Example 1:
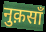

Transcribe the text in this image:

नुक़साँ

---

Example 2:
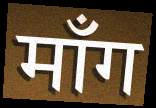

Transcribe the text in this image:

माँग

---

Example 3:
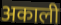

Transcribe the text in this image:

अकाली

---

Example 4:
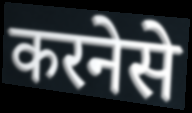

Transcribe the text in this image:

करनेसे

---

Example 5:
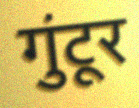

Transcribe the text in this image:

गुंटूर